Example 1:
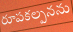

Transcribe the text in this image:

రూపకల్పనను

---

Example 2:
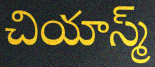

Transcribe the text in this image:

చియాస్మ్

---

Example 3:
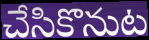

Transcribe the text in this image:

చేసికొనుట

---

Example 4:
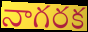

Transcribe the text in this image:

నాగరక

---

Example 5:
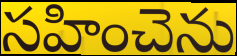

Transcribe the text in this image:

సహించెను